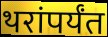
थरांपर्यंत